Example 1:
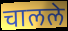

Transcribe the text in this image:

चालले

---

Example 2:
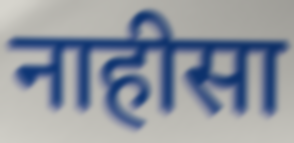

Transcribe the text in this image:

नाहीसा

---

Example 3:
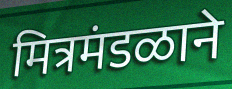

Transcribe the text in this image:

मित्रमंडळाने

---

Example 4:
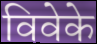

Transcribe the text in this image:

विवेके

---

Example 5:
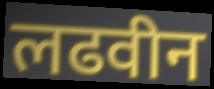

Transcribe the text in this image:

लढवीन